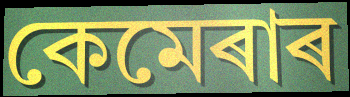
কেমেৰাৰ